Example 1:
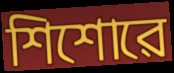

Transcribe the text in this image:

শিশোৱে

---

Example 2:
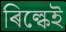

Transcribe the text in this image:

ৰিল্কেই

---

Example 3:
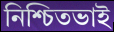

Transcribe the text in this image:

নিশ্চিতভাই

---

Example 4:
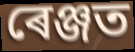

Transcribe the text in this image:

ৰেঞ্জত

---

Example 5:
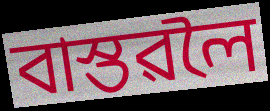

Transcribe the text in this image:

বাস্তৱলৈ